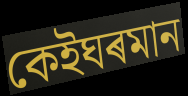
কেইঘৰমান